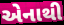
એનાથી